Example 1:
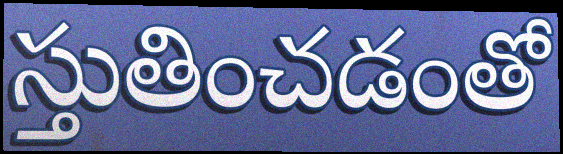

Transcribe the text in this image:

స్తుతించడంతో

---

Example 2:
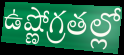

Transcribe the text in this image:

ఉష్ణోగ్రతల్లో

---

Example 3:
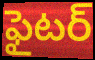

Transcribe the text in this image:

ఫైటర్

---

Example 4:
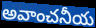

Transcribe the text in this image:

అవాంచనీయ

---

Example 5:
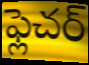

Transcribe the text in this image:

ఫ్లెచర్